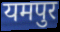
यमपुर